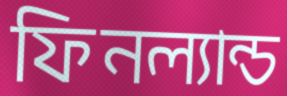
ফিনল্যান্ড